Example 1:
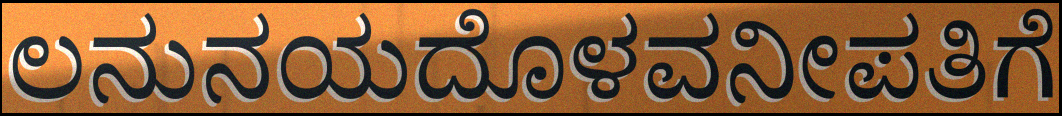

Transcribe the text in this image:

ಲನುನಯದೊಳವನೀಪತಿಗೆ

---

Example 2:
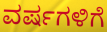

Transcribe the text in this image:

ವರ್ಷಗಳಿಗೆ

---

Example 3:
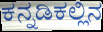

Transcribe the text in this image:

ಕನ್ನಡಿಕಲ್ಲಿನ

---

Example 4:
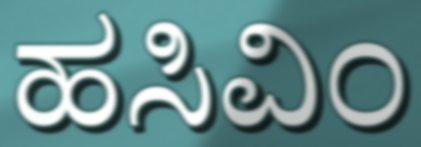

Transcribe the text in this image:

ಹಸಿವಿಂ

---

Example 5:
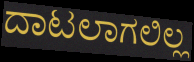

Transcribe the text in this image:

ದಾಟಲಾಗಲಿಲ್ಲ